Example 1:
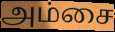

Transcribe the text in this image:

அம்சை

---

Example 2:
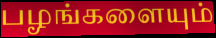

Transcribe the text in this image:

பழங்களையும்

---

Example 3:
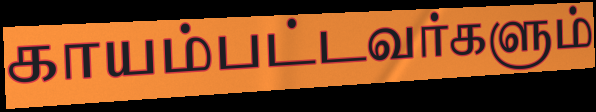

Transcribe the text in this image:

காயம்பட்டவர்களும்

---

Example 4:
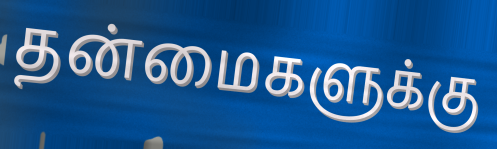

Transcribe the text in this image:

தன்மைகளுக்கு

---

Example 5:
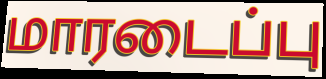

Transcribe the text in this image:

மாரடைப்பு